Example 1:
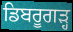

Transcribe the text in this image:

ਡਿਬਰੂਗੜ੍ਹ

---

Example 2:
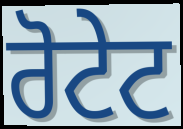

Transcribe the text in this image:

ਰੋਟੇਟ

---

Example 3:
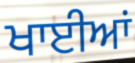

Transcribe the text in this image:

ਖਾਈਆਂ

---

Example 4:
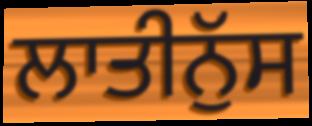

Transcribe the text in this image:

ਲਾਤੀਨੁੱਸ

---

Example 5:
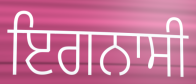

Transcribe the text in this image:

ਇਗਨਾਸੀ